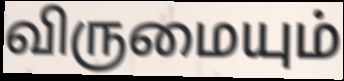
விருமையும்